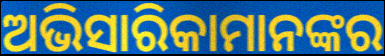
ଅଭିସାରିକାମାନଙ୍କର